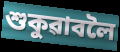
শুকুৱাবলৈ